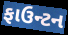
ફાઉન્ટન